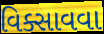
વિક્સાવવા